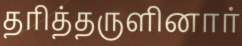
தரித்தருளினார்